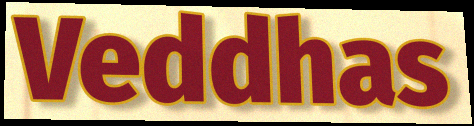
Veddhas